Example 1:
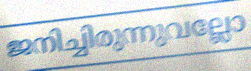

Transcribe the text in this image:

ജനിച്ചിരുന്നുവല്ലോ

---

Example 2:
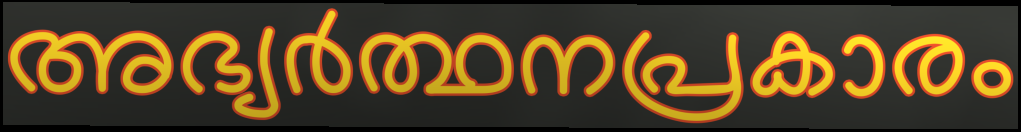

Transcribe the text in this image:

അഭ്യർത്ഥനപ്രകാരം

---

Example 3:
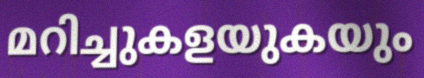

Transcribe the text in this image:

മറിച്ചുകളയുകയും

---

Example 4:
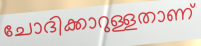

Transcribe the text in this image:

ചോദിക്കാറുള്ളതാണ്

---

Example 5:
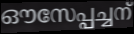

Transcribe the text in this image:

ഔസേപ്പച്ചന്